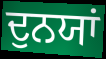
ਦੁਨਯਾਂ